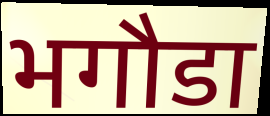
भगौडा